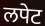
लपेट